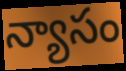
న్యాసం